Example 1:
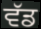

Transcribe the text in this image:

ਵੱਡ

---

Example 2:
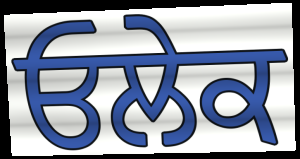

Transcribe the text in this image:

ਓਲੇਕ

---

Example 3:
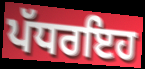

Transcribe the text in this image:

ਪੱਧਰਇਹ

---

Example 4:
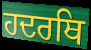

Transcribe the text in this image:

ਹਦਰਥਿ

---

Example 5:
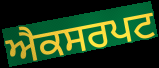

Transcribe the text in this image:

ਐਕਸਰਪਟ